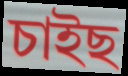
চাইছ